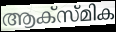
ആക്സ്മിക